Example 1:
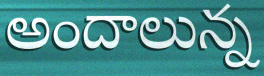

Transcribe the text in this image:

అందాలున్న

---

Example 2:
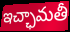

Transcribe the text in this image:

ఇచ్ఛామతీ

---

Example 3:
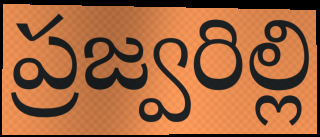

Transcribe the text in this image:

ప్రజ్వరిల్లి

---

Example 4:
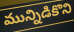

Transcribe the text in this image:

మున్నిడికొని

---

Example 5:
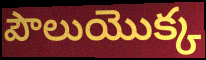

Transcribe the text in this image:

పౌలుయొక్క